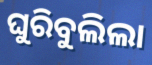
ଘୁରିବୁଲିଲା